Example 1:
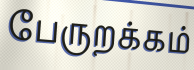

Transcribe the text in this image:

பேருறக்கம்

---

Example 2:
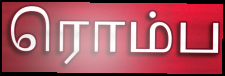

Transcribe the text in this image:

ரொம்ப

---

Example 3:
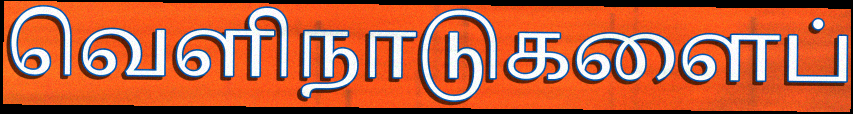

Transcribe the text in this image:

வெளிநாடுகளைப்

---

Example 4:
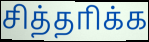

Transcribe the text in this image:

சித்தரிக்க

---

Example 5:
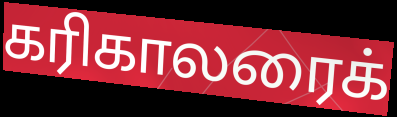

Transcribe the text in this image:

கரிகாலரைக்